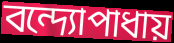
বন্দ্যোপাধায়